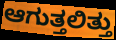
ಆಗುತ್ತಲಿತ್ತು